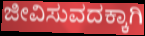
ಜೀವಿಸುವದಕ್ಕಾಗಿ